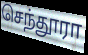
செந்தூரா